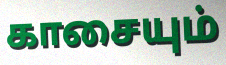
காசையும்